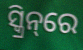
ସ୍କ୍ରିନ୍‌ରେ